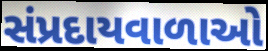
સંપ્રદાયવાળાઓ